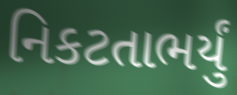
નિકટતાભર્યું